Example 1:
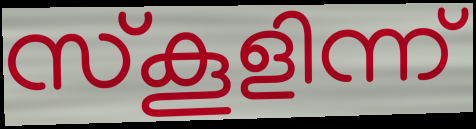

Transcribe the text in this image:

സ്കൂളിന്ന്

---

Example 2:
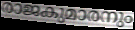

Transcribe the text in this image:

രാജകുമാരനും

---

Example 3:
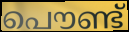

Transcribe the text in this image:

പൌണ്ട്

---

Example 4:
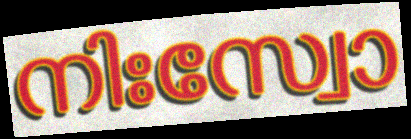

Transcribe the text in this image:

നിഃസ്വോ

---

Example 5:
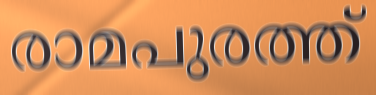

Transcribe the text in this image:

രാമപുരത്ത്